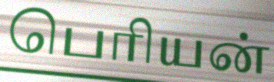
பெரியன்